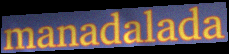
manadalada